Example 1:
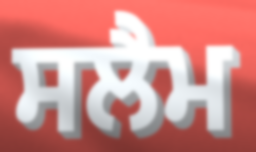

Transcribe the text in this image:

ਸਲੈਮ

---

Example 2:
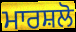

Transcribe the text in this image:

ਮਾਰਸ਼ਲੋ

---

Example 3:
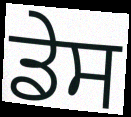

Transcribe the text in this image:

ਡੇਸ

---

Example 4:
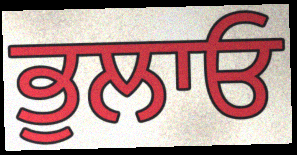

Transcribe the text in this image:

ਭੁਲਾਓ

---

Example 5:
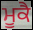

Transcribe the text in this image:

ਮੂਕੈ